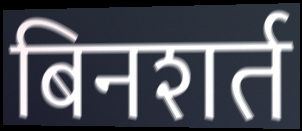
बिनशर्त